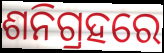
ଶନିଗ୍ରହରେ